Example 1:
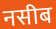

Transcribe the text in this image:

नसीब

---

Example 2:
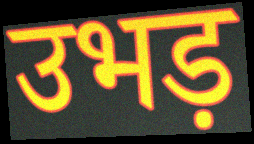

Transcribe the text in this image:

उभड़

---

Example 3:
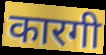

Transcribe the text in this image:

कारगी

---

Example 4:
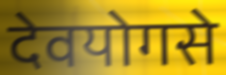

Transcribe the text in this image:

देवयोगसे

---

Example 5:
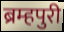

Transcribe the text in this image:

ब्रम्हपुरी